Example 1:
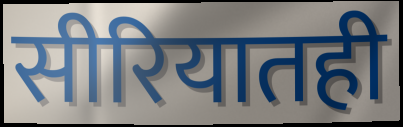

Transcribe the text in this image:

सीरियातही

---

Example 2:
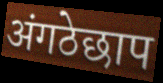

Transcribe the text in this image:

अंगठेछाप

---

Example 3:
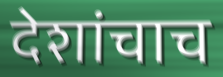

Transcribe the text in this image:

देशांचाच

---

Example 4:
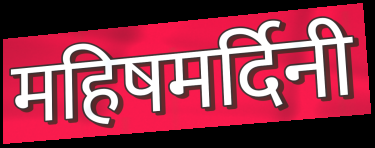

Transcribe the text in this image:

महिषमर्दिनी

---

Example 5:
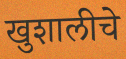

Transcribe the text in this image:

खुशालीचे